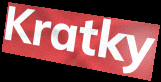
Kratky